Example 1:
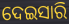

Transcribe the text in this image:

ଦେଇସାରି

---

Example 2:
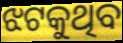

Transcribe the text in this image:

ଝଟକୁଥିବ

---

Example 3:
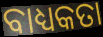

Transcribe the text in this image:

ବାଧ୍ୟକତା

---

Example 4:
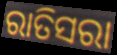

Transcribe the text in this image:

ରାତିସରା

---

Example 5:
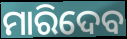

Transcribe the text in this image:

ମାରିଦେବ